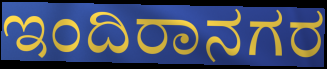
ಇಂದಿರಾನಗರ